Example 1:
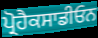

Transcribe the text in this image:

ਪ੍ਰੋਹੈਕਸਾਡੀਓਨ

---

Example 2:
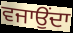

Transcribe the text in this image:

ਵਜਾਉਂਦਾ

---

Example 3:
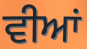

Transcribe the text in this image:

ਵੀਆਂ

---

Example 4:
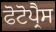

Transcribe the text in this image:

ਫੋਟੋਪ੍ਰੈਸ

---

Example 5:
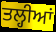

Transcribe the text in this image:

ਤਲ੍ਹੀਆਂ